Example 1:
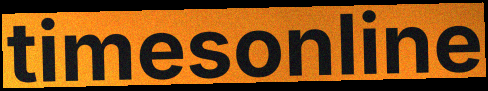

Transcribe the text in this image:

timesonline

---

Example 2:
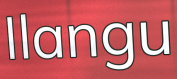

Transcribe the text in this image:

Ilangu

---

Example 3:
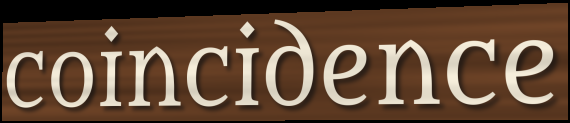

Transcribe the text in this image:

coincidence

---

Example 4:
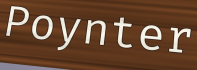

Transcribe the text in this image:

Poynter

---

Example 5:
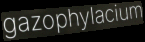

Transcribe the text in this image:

gazophylacium